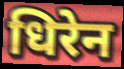
धिरेन